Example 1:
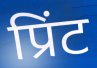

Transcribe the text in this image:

प्रिंट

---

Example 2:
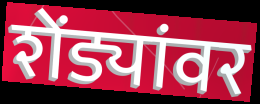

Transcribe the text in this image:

शेंड्यांवर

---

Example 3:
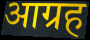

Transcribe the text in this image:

आग्रह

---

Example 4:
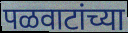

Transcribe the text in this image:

पळवाटांच्या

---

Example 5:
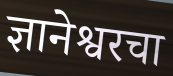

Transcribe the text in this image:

ज्ञानेश्वरचा